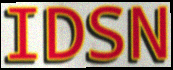
IDSN